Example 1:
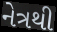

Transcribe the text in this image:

નેત્રથી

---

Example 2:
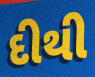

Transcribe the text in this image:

દીથી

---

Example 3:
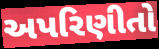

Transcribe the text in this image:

અપરિણીતો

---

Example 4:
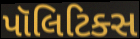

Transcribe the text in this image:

પૉલિટિક્સ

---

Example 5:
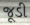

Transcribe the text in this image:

જૂડી